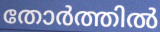
തോർത്തിൽ